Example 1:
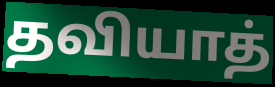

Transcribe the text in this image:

தவியாத்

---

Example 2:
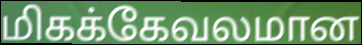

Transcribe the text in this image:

மிகக்கேவலமான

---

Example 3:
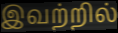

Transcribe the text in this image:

இவற்றில்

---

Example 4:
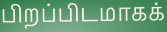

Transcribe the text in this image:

பிறப்பிடமாகக்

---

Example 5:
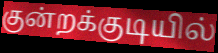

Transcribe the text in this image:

குன்றக்குடியில்